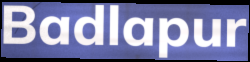
Badlapur